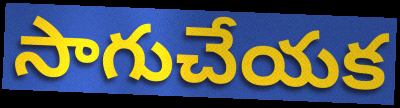
సాగుచేయక